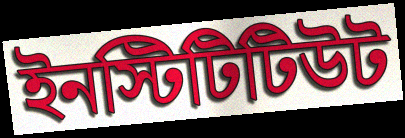
ইনস্টিটিটিউট